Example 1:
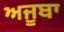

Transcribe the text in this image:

ਅਜੂਬਾ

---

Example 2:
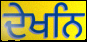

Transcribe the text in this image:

ਦੇਖਨਿ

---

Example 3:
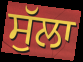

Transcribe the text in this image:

ਸੁੱਲਾ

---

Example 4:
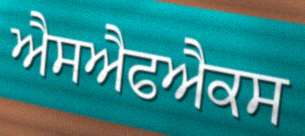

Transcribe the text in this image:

ਐਸਐਫਐਕਸ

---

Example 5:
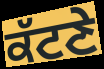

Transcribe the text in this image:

ਕੱਟਣੇ